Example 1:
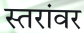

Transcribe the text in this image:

स्तरांवर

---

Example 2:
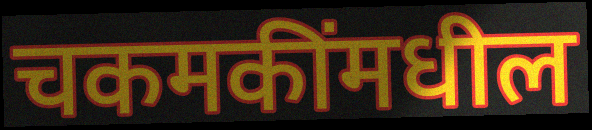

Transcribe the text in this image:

चकमकींमधील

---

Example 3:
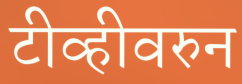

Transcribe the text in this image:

टीव्हीवरुन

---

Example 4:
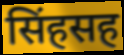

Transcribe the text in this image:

सिंहसह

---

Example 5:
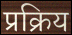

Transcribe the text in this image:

प्रक्रिय